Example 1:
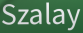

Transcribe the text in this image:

Szalay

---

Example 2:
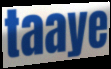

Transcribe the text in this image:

taaye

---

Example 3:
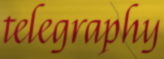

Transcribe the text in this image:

telegraphy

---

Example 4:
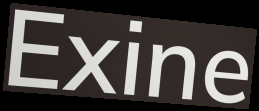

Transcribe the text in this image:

Exine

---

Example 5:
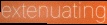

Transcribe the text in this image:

extenuating